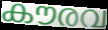
കൗരവ